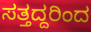
ಸತ್ತದ್ದರಿಂದ